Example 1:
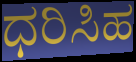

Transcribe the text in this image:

ಧರಿಸಿಹ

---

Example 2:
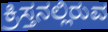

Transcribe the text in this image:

ಕ್ರಿಸ್ತನಲ್ಲಿರುವ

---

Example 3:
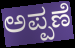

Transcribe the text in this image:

ಅಪ್ಪಣೆ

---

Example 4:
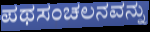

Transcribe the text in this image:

ಪಥಸಂಚಲನವನ್ನು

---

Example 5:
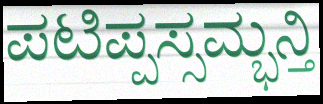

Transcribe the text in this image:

ಪಟಿಪ್ಪಸ್ಸಮ್ಭನ್ತಿ